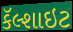
કૅલ્શાઇટ